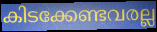
കിടക്കേണ്ടവരല്ല